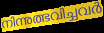
നിന്നുത്ഭവിച്ചവർ